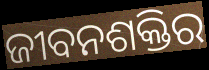
ଜୀବନଶକ୍ତିର